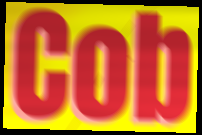
Cob